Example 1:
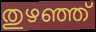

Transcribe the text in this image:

തുഴഞ്ഞ്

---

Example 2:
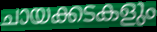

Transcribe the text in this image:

ചായക്കടകളും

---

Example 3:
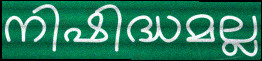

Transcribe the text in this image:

നിഷിദ്ധമല്ല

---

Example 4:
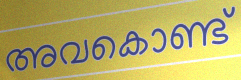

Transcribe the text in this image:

അവകൊണ്ട്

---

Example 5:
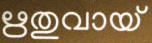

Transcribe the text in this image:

ഋതുവായ്